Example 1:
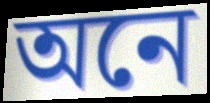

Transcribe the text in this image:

অনে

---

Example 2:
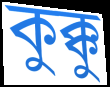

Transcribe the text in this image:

কুক্কু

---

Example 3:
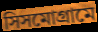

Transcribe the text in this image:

সিসমোগ্রামে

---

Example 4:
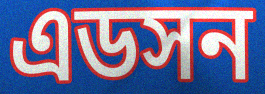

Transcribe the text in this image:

এডসন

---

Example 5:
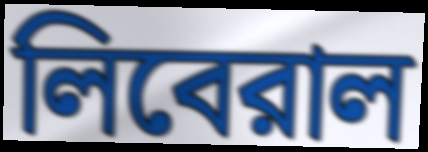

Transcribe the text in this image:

লিবেরাল